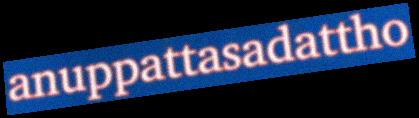
anuppattasadattho